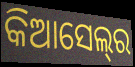
କିଆସେଲ୍‌ର